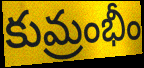
కుమ్రంభీం